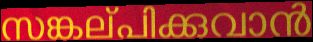
സങ്കല്‌പിക്കുവാൻ